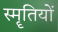
स्मॄतियों